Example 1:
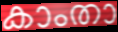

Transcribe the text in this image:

കാംതാ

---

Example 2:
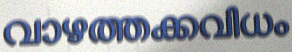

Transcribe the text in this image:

വാഴത്തക്കവിധം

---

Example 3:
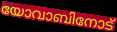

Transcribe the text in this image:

യോവാബിനോട്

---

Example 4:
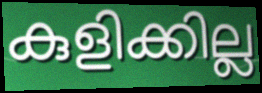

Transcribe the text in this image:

കുളിക്കില്ല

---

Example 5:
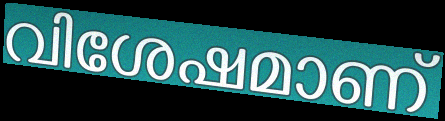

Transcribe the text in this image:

വിശേഷമാണ്